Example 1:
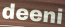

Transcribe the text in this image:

deeni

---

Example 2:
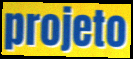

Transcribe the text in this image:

projeto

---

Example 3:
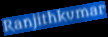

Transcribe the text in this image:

Ranjithkumar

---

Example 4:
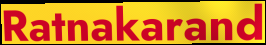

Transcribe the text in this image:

Ratnakarand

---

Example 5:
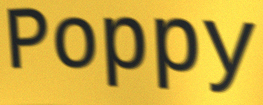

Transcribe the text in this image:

Poppy